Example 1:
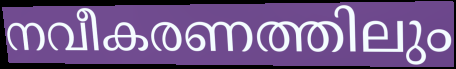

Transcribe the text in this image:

നവീകരണത്തിലും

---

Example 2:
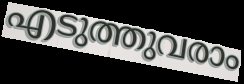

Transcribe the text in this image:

എടുത്തുവരാം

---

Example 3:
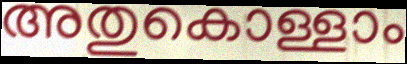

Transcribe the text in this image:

അതുകൊള്ളാം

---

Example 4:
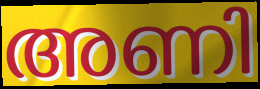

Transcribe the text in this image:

അണി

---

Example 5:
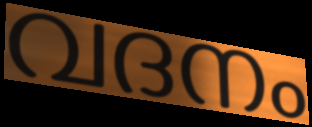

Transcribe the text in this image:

വദനം